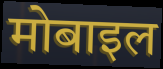
मोबाइल